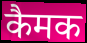
कैमक